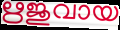
ഋജുവായ